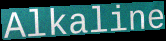
Alkaline